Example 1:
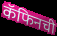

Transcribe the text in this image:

कॅफिनची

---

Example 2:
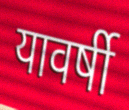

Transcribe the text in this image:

यावर्षी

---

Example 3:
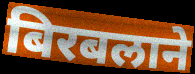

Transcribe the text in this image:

बिरबलाने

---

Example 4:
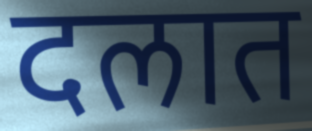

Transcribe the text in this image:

दलात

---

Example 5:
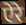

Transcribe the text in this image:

ऐरे